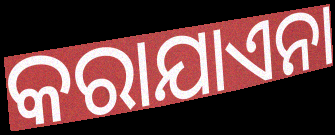
କରାଯାଏନା